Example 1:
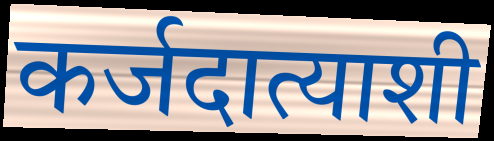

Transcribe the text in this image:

कर्जदात्याशी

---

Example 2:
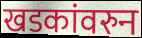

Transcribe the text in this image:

खडकांवरुन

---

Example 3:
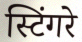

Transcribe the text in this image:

स्टिंगरे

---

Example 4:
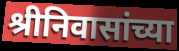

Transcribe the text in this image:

श्रीनिवासांच्या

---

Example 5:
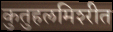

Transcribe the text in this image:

कुतुहलमिश्रीत